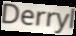
Derryl